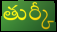
తుర్కీ